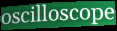
oscilloscope